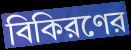
বিকিরণের